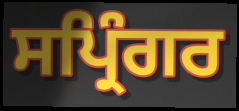
ਸਪ੍ਰਿੰਗਰ